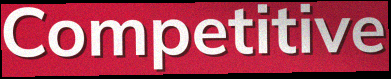
Competitive